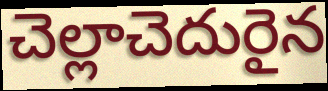
చెల్లాచెదురైన